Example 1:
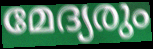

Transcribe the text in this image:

മേദ്യരും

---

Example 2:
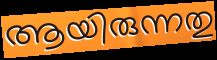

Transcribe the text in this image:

ആയിരുന്നതു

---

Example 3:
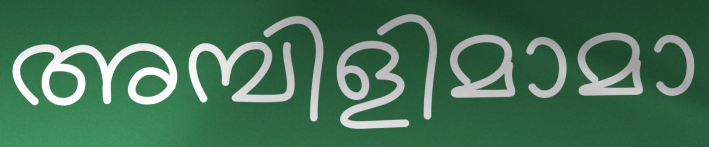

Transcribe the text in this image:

അമ്പിളിമാമാ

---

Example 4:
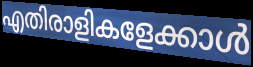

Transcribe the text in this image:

എതിരാളികളേക്കാൾ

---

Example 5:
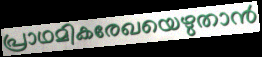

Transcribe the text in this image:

പ്രാഥമികരേഖയെഴുതാൻ